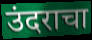
उंदराचा